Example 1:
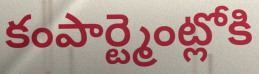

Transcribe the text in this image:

కంపార్ట్మెంట్లోకి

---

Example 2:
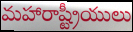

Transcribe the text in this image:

మహారాష్ట్రీయులు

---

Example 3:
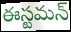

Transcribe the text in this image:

ఈస్టమన్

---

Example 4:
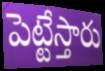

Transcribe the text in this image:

పెట్టేస్తారు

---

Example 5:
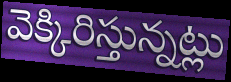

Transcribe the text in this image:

వెక్కిరిస్తున్నట్లు